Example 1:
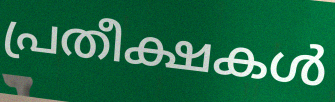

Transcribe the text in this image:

പ്രതീക്ഷകൾ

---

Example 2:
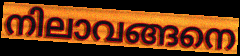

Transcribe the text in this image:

നിലാവങ്ങനെ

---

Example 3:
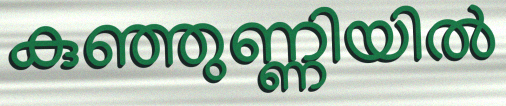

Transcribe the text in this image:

കുഞ്ഞുണ്ണിയിൽ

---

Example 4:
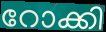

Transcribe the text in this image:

റോക്കി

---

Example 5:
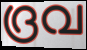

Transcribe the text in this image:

ദ്രവ